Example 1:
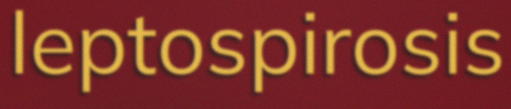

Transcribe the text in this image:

leptospirosis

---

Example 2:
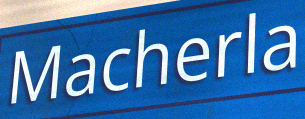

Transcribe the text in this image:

Macherla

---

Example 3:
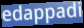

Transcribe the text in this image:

edappadi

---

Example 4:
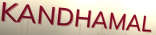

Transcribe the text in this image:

KANDHAMAL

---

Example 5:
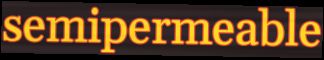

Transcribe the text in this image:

semipermeable